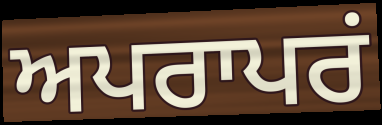
ਅਪਰਾਪਰਂ